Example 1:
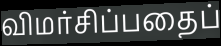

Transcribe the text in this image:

விமர்சிப்பதைப்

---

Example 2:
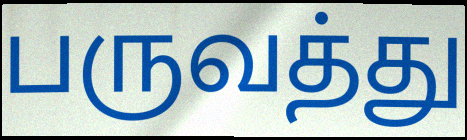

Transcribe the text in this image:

பருவத்து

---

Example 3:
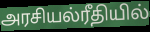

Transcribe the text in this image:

அரசியல்ரீதியில்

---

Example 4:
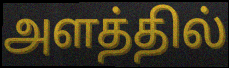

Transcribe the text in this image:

அளத்தில்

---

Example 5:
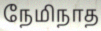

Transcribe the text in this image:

நேமிநாத